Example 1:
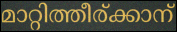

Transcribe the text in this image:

മാറ്റിത്തീര്ക്കാന്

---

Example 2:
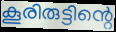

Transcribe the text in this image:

കൂരിരുട്ടിന്റെ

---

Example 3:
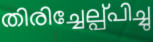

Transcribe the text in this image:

തിരിച്ചേല്പ്പിച്ചു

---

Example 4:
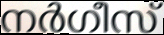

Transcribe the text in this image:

നർഗീസ്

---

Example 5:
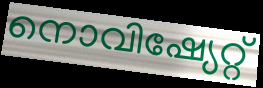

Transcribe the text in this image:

നൊവിഷ്യേറ്റ്